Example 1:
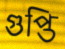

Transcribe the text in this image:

গুপ্তি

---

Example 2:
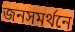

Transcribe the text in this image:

জনসমর্থনে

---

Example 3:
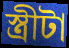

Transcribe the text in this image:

স্ত্রীটা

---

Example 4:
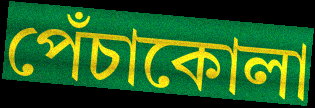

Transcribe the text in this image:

পেঁচাকোলা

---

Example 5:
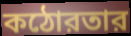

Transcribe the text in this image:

কঠোরতার